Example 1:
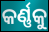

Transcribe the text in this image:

କର୍ଣ୍ଣକୁ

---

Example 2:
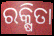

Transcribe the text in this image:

ରକ୍ଷିତା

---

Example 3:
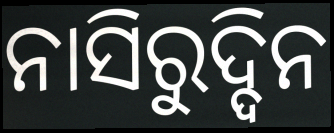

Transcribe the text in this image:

ନାସିରୁଦ୍ଦିନ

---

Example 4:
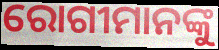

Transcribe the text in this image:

ରୋଗୀମାନଙ୍କୁ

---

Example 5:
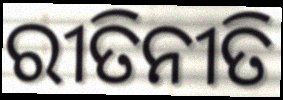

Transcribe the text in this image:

ରୀତିନୀତି